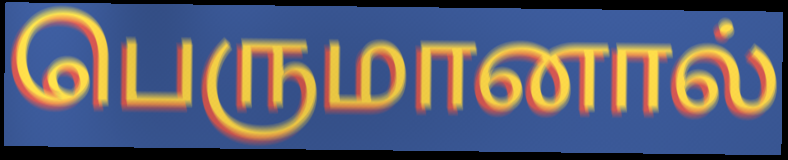
பெருமானால்